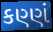
કણ્ણં